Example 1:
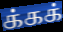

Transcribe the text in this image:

க்கக்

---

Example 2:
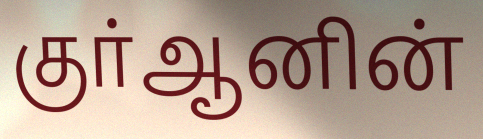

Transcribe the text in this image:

குர்ஆனின்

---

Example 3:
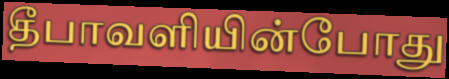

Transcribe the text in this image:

தீபாவளியின்போது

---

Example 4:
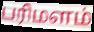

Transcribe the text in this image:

பரிமளம்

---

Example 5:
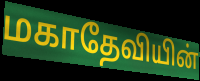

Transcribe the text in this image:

மகாதேவியின்